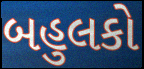
બહુલકો